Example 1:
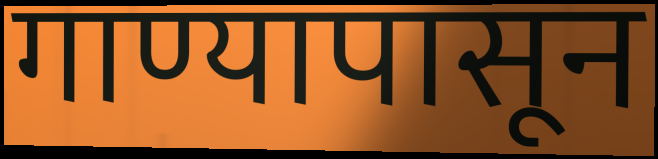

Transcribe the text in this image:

गाण्यापासून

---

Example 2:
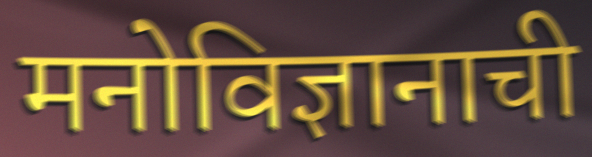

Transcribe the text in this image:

मनोविज्ञानाची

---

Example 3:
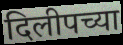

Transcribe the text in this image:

दिलीपच्या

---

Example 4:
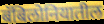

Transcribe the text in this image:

बॅबिलोनियातील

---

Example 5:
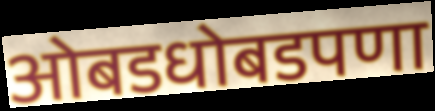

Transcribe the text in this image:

ओबडधोबडपणा